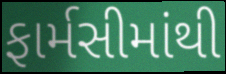
ફાર્મસીમાંથી